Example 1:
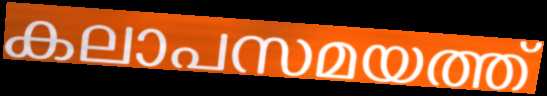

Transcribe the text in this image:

കലാപസമയത്ത്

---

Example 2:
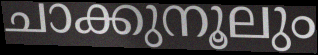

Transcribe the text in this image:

ചാക്കുനൂലും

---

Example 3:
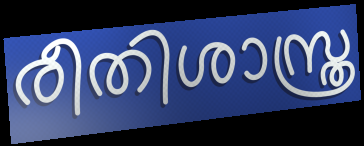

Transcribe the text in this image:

രീതിശാസ്ത്ര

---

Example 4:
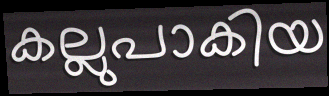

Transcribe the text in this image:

കല്ലുപാകിയ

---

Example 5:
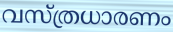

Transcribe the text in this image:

വസ്ത്രധാരണം